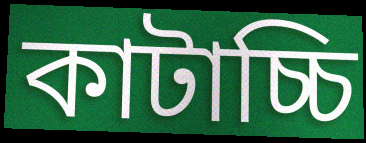
কাটাচ্চি